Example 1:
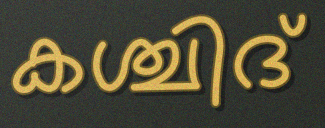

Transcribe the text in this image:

കശ്ചിദ്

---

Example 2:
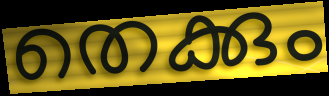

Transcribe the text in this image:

തെക്കും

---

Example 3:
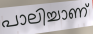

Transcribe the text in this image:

പാലിച്ചാണ്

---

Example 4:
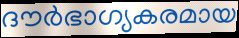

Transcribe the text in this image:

ദൗർഭാഗ്യകരമായ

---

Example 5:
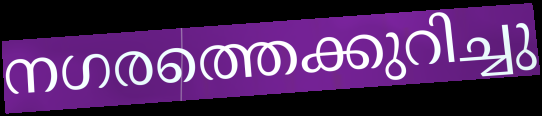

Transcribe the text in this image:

നഗരത്തെക്കുറിച്ചു